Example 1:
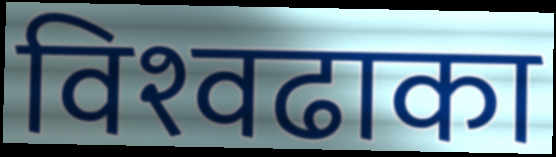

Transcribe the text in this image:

विश्वढाका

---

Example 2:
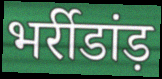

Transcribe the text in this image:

भर्रीडांड़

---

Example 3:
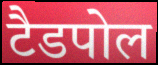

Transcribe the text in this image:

टैडपोल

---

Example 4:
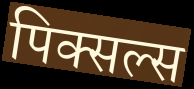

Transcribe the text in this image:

पिक्सल्स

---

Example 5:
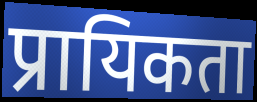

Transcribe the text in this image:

प्रायिकता